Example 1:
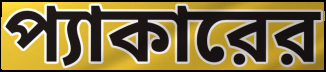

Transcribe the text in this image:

প্যাকারের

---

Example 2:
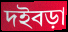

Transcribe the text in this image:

দইবড়া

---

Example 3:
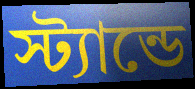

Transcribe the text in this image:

স্ট্যান্ডে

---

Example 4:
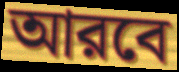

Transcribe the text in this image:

আরবে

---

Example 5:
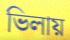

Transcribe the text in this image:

ভিলায়